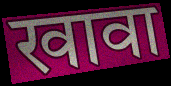
खावा